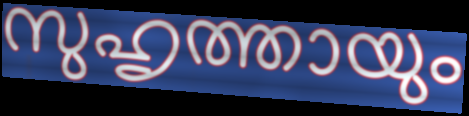
സുഹൃത്തായും